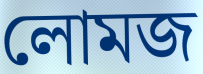
লোমজ